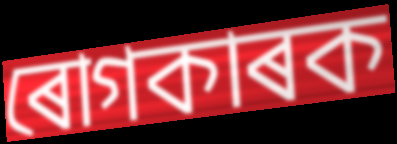
ৰোগকাৰক